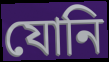
যোনি